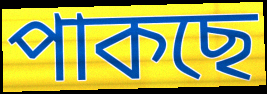
পাকছে